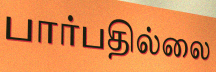
பார்பதில்லை